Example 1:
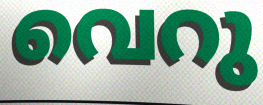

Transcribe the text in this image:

വെറു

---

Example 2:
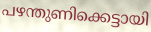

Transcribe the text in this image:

പഴന്തുണിക്കെട്ടായി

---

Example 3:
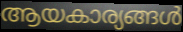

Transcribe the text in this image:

ആയകാര്യങ്ങൾ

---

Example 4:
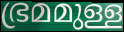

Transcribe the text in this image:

ഭ്രമമുള്ള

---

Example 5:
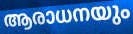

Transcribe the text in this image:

ആരാധനയും